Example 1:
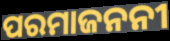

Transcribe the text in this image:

ପରମାଜନନୀ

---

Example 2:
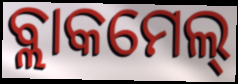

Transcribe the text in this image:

ବ୍ଲାକମେଲ୍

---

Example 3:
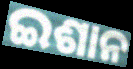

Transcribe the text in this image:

ଇଶାନ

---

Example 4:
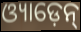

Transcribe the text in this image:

ଓ୍ୟାଡ଼େନ୍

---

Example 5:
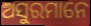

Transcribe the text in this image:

ଅସୁରମାନେ